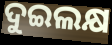
ଦୁଇଲକ୍ଷ